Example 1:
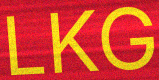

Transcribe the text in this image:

LKG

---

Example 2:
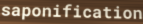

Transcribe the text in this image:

saponification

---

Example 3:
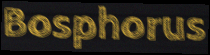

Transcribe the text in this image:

Bosphorus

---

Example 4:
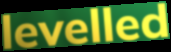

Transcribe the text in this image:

levelled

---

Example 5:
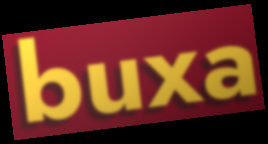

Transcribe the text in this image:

buxa